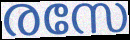
രസേ